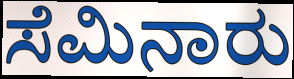
ಸೆಮಿನಾರು